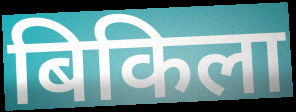
बिकिला